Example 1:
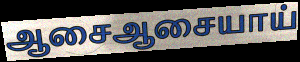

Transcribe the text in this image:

ஆசைஆசையாய்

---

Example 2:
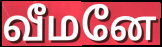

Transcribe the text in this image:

வீமனே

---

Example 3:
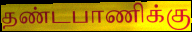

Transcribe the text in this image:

தண்டபாணிக்கு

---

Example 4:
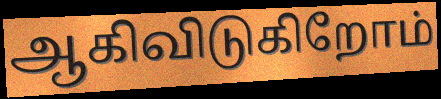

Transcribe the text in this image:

ஆகிவிடுகிறோம்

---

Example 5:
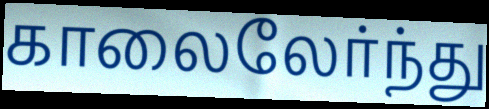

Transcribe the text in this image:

காலைலேர்ந்து